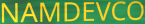
NAMDEVCO